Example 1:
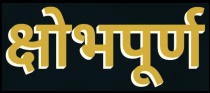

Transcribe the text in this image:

क्षोभपूर्ण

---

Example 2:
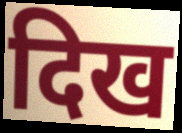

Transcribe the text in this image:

दिख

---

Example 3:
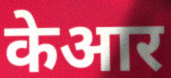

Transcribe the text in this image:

केआर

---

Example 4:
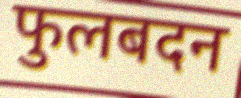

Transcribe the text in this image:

फुलबदन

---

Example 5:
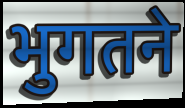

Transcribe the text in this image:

भुगतने